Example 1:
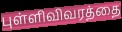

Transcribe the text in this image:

புள்ளிவிவரத்தை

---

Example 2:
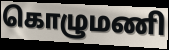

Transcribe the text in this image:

கொழுமணி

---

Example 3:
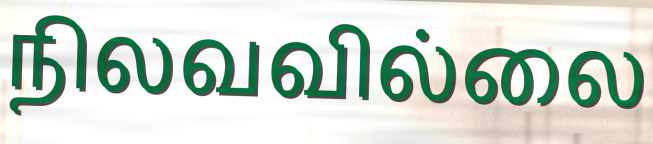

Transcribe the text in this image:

நிலவவில்லை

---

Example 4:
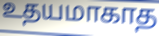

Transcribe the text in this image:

உதயமாகாத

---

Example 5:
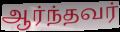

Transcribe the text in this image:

ஆர்ந்தவர்